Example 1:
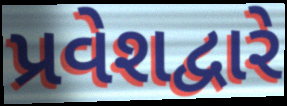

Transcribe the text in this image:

પ્રવેશદ્વારે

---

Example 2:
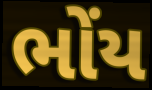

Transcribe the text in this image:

ભોંય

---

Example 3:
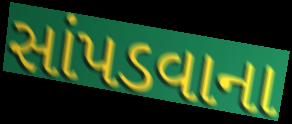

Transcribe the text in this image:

સાંપડવાના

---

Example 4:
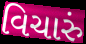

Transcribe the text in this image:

વિચારું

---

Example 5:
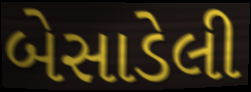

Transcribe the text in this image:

બેસાડેલી